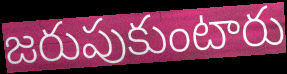
జరుపుకుంటారు